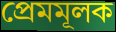
প্ৰেমমূলক